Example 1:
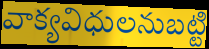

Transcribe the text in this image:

వాక్యవిధులనుబట్టి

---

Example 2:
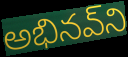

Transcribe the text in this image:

అభినవ్‌ని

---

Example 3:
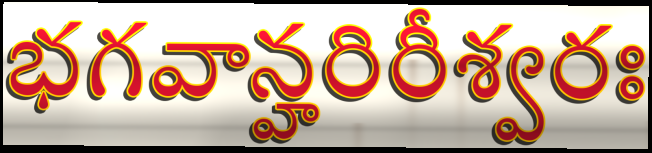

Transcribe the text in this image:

భగవాన్హరిరీశ్వరః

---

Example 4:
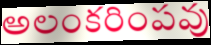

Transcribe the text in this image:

అలంకరింపవు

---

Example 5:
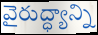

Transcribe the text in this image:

వైరుద్ధ్యాన్ని